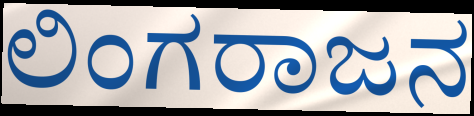
ಲಿಂಗರಾಜನ